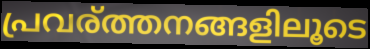
പ്രവര്ത്തനങ്ങളിലൂടെ